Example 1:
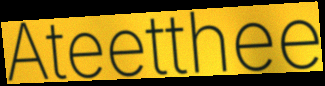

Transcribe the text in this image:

Ateetthee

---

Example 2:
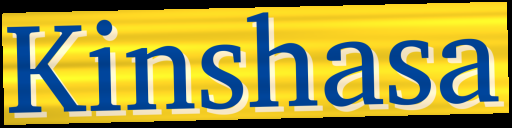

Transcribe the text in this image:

Kinshasa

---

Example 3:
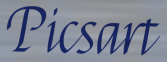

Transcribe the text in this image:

Picsart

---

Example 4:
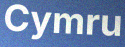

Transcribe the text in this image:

Cymru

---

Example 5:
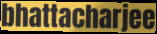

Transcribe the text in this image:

bhattacharjee